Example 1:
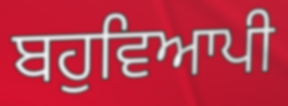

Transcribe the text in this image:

ਬਹੁਵਿਆਪੀ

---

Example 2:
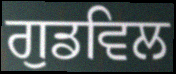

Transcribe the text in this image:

ਗੁਡਵਿਲ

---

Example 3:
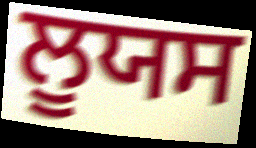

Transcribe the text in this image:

ਲੂਯਸ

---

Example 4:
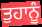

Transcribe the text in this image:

ਤੁਹਾਨੂੰ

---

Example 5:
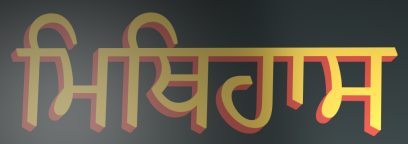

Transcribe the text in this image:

ਮਿਥਿਹਾਸ